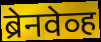
ब्रेनवेव्ह